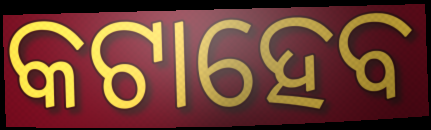
କଟାହେବ